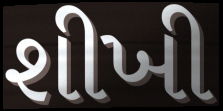
શીખી